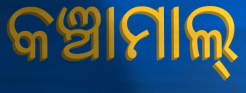
କଞ୍ଚାମାଲ୍